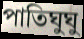
পাতিঘুঘু